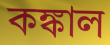
কঙ্কাল